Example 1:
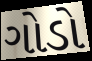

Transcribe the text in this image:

ગોડો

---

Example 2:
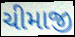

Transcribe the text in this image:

ચીમાજી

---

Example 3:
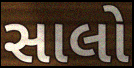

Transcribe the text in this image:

સાલો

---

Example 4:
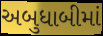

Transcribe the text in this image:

અબુધાબીમાં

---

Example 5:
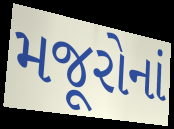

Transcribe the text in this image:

મજૂરોનાં